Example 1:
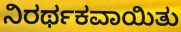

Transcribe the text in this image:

ನಿರರ್ಥಕವಾಯಿತು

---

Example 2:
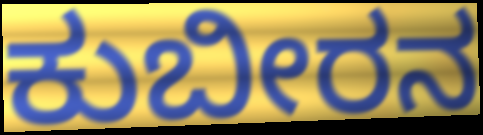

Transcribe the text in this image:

ಕುಬೀರನ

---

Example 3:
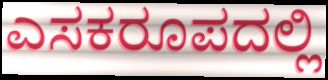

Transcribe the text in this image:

ಎಸಕರೂಪದಲ್ಲಿ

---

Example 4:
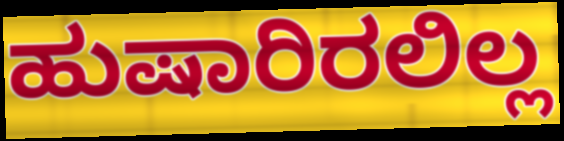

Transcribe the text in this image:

ಹುಷಾರಿರಲಿಲ್ಲ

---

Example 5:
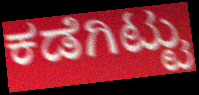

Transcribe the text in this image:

ಕಡೆಗಿಟ್ಟು